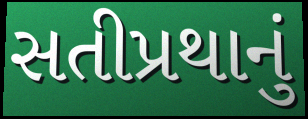
સતીપ્રથાનું